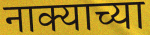
नाक्याच्या